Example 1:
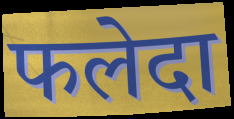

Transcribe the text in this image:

फलेदा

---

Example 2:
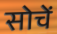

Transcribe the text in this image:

सोचें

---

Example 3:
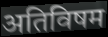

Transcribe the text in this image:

अतिविषम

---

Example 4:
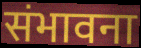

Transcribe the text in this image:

संभावना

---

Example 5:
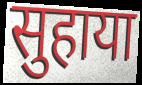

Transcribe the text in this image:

सुहाया